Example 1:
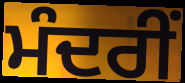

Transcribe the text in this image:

ਮੰਦਰੀਂ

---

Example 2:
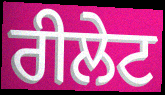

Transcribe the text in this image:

ਰੀਲੇਟ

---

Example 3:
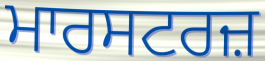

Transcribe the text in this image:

ਮਾਰਸਟਰਜ਼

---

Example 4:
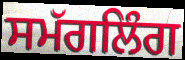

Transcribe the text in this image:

ਸਮੱਗਲਿੰਗ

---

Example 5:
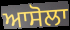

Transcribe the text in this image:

ਆਸੋਲਾ